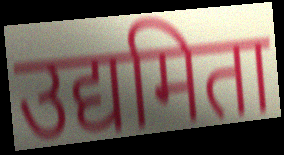
उद्यमिता